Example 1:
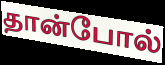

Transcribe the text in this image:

தான்போல்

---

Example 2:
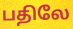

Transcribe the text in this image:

பதிலே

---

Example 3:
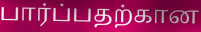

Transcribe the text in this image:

பார்ப்பதற்கான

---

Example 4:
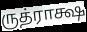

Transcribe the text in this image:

ருத்ராக்ஷ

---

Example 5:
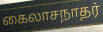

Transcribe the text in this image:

கைலாசநாதர்